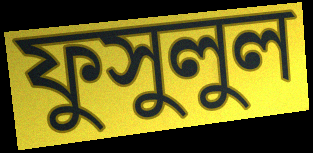
ফুসুলুল